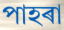
পাহৰা